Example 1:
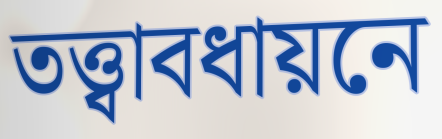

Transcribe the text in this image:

তত্ত্বাবধায়নে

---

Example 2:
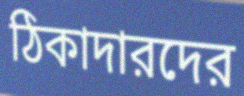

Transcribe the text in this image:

ঠিকাদারদের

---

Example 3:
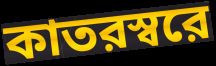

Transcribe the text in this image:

কাতরস্বরে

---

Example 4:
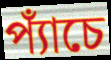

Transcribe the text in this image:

প্যাঁচে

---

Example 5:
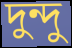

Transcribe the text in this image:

দুন্দু